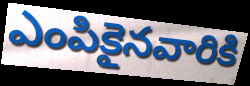
ఎంపికైనవారికి